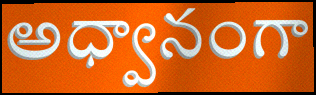
అధ్వానంగా